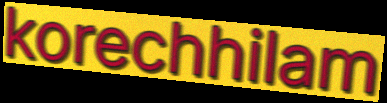
korechhilam